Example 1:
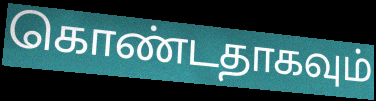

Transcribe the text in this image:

கொண்டதாகவும்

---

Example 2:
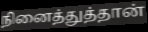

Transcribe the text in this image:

நினைத்துத்தான்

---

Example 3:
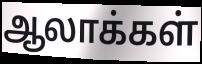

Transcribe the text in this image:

ஆலாக்கள்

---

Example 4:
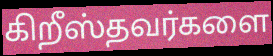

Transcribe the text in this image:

கிறீஸ்தவர்களை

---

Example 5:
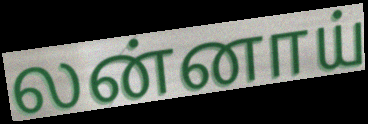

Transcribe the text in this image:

லன்னாய்